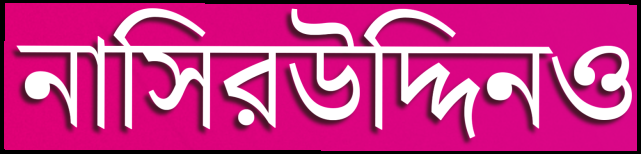
নাসিরউদ্দিনও